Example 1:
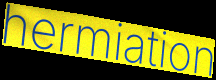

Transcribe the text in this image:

hermiation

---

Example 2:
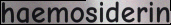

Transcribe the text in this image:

haemosiderin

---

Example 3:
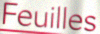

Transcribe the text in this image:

Feuilles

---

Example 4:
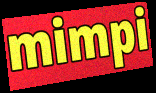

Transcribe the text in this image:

mimpi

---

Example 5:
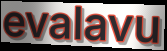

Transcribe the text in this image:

evalavu